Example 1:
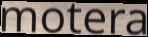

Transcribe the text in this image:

motera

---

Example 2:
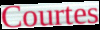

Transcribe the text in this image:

Courtes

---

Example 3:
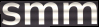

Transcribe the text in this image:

smm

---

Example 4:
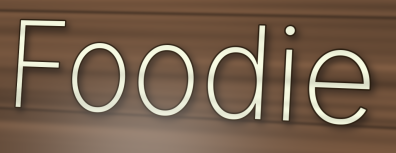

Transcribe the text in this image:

Foodie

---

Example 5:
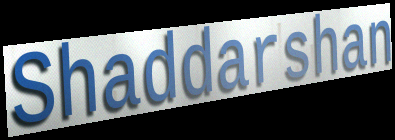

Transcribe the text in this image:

Shaddarshan